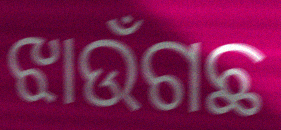
ଝାଉଁଗଛ